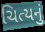
ચિત્યનું